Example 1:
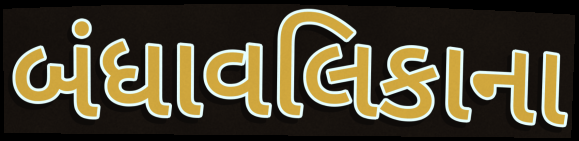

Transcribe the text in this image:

બંધાવલિકાના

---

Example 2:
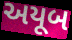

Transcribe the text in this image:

અયૂબ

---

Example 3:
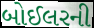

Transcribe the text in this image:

બોઈલરની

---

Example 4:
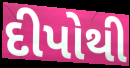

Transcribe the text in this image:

દીપોથી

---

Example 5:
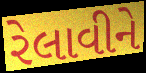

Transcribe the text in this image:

રેલાવીને